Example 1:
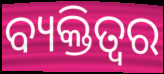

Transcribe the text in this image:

ବ୍ୟକ୍ତିତ୍ବର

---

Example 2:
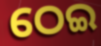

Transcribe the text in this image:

ଠେଇ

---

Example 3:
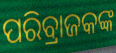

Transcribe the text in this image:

ପରିବ୍ରାଜକଙ୍କ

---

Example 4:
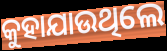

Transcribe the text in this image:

କୁହାଯାଉଥିଲେ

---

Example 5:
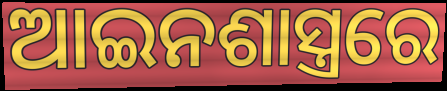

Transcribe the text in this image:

ଆଇନଶାସ୍ତ୍ରରେ